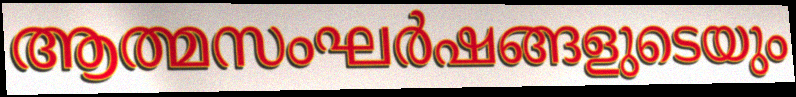
ആത്മസംഘർഷങ്ങളുടെയും